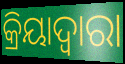
କ୍ରିୟାଦ୍ଵାରା